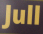
Jull